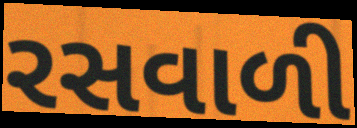
રસવાળી